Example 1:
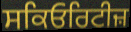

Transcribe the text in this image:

ਸਕਿਓਰਿਟੀਜ਼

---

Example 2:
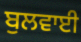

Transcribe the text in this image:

ਬੁਲਵਾਈ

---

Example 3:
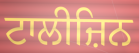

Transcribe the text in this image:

ਟਾਲੀਜ਼ਿਨ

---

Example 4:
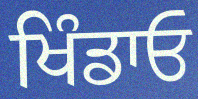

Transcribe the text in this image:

ਖਿੰਡਾਓ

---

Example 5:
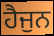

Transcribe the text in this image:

ਹੈਜੁਨ